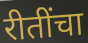
रीतींचा